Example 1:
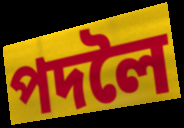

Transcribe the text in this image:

পদলৈ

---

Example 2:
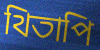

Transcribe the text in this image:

থিতাপি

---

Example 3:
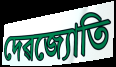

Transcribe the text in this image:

দেৱজ্যোতি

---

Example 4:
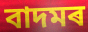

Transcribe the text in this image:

বাদমৰ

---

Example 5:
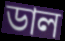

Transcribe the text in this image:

ডাল